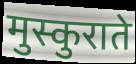
मुस्कुराते